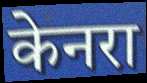
केनरा